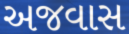
અજવાસ